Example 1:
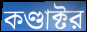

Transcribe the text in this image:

কণ্ডাক্টর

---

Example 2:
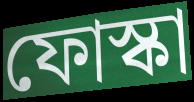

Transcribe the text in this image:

ফোস্কা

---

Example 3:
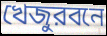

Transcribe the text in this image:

খেজুরবনে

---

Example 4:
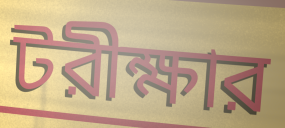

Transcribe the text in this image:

টরীক্ষার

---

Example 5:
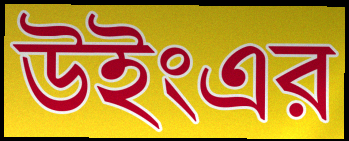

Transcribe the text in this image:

উইংএর